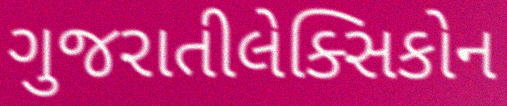
ગુજરાતીલેક્સિકોન